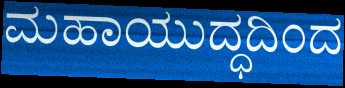
ಮಹಾಯುದ್ಧದಿಂದ